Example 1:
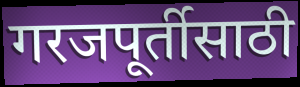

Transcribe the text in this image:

गरजपूर्तीसाठी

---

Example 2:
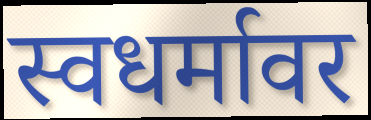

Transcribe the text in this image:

स्वधर्मावर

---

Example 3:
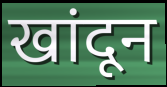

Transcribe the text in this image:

खांदून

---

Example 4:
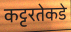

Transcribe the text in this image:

कट्टरतेकडे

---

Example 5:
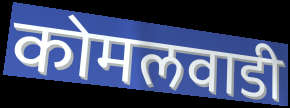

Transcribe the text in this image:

कोमलवाडी